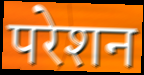
परेशन